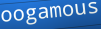
oogamous